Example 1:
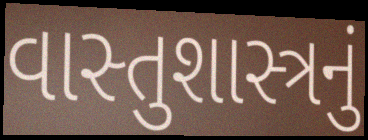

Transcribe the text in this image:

વાસ્તુશાસ્ત્રનું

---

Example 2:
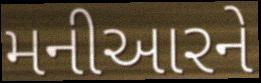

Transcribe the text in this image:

મનીઆરને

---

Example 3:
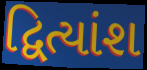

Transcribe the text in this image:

દ્વિત્યાંશ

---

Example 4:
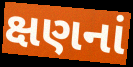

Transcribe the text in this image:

ક્ષણનાં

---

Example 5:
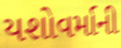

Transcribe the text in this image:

યશોવર્માની